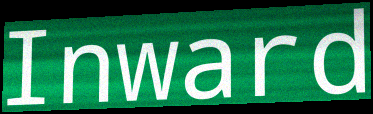
Inward